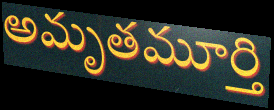
అమృతమూర్తి